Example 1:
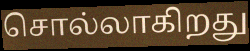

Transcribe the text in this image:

சொல்லாகிறது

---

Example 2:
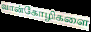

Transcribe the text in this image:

வான்கோழிகளை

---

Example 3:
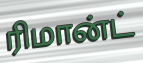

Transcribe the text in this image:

ரிமான்ட்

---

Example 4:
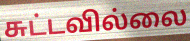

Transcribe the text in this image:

சுட்டவில்லை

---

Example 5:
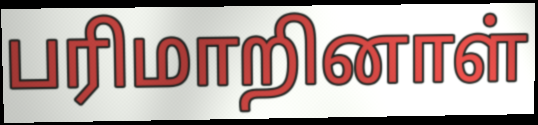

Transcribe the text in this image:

பரிமாறினாள்